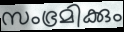
സംഭ്രമിക്കും